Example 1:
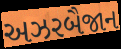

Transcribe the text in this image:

અઝરબૈજાન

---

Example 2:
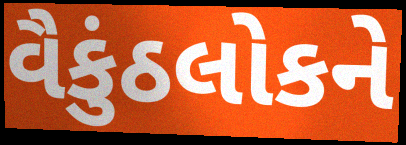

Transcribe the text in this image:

વૈકુંઠલોકને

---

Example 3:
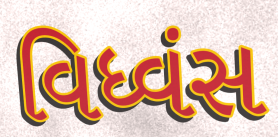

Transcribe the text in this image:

વિધ્વંસ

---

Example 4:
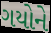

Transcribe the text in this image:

ગયોને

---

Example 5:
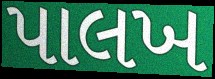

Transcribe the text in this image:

પાલખ